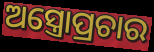
ଅସ୍ତ୍ରୋପ୍ରଚାର